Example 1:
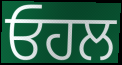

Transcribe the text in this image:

ਓਹਲ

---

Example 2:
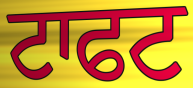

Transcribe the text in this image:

ਟਾਫਟ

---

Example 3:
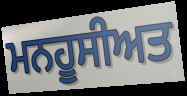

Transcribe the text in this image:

ਮਨਹੂਸੀਅਤ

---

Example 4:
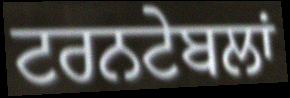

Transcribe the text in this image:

ਟਰਨਟੇਬਲਾਂ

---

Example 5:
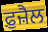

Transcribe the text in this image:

ਫ਼ੁਜ਼ੈਲ